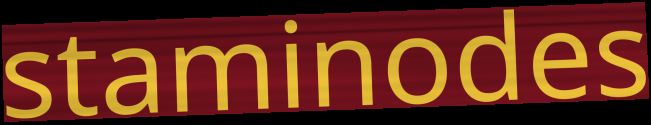
staminodes